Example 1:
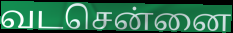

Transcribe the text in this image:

வடசென்னை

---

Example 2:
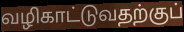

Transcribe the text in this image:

வழிகாட்டுவதற்குப்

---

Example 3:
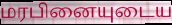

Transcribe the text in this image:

மரபினையுடைய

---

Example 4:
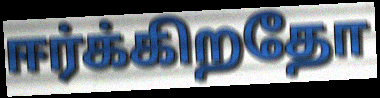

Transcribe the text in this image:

ஈர்க்கிறதோ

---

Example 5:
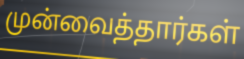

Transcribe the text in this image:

முன்வைத்தார்கள்